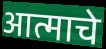
आत्माचे